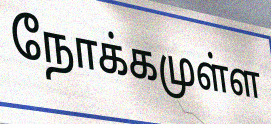
நோக்கமுள்ள